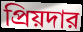
প্রিয়দার